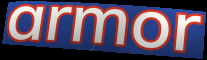
armor